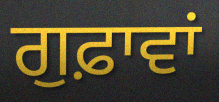
ਗੁਫ਼ਾਵਾਂ